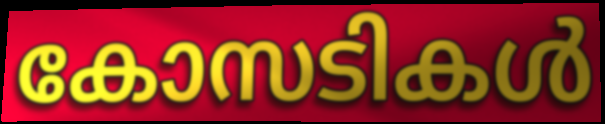
കോസടികൾ